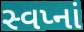
સ્વપ્નાં